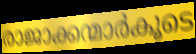
രാജാക്കന്മാർകൂടെ